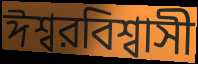
ঈশ্বরবিশ্বাসী